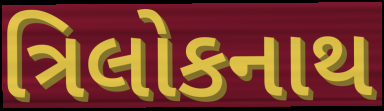
ત્રિલોકનાથ